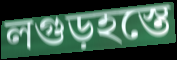
লগুড়হস্তে